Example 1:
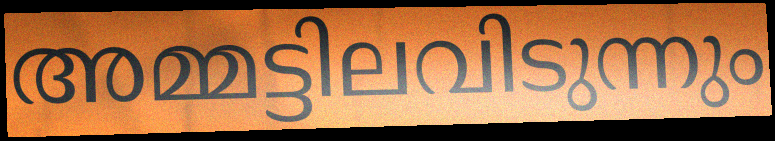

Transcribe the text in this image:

അമ്മട്ടിലവിടുന്നും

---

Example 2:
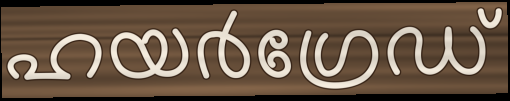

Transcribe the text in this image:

ഹയർഗ്രേഡ്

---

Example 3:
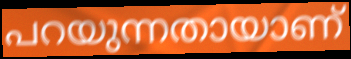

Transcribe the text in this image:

പറയുന്നതായാണ്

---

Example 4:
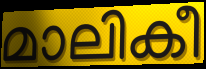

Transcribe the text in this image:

മാലികീ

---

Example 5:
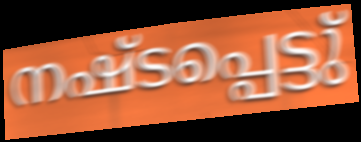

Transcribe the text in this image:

നഷ്ടപ്പെട്ടു്